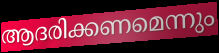
ആദരിക്കണമെന്നും